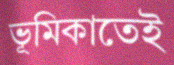
ভূমিকাতেই